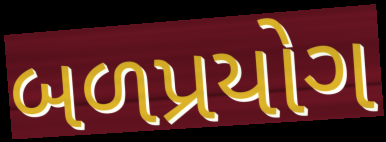
બળપ્રયોગ